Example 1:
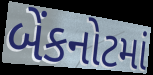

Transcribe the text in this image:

બેંકનોટમાં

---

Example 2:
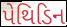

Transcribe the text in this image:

પેથિડિન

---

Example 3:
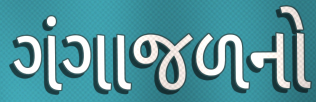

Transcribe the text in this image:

ગંગાજળનો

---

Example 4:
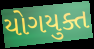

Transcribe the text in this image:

યોગયુક્ત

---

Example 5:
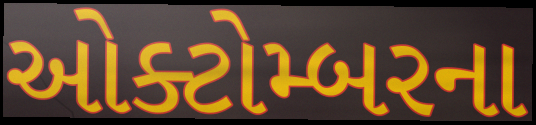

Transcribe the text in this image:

ઓક્ટોમ્બરના